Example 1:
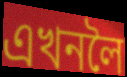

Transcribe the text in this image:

এখনলৈ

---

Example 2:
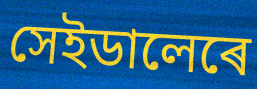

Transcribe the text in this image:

সেইডালেৰে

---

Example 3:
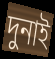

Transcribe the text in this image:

দুনাই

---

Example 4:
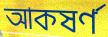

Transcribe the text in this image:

আকষৰ্ণ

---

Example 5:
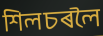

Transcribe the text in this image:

শিলচৰলৈ